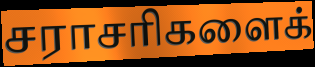
சராசரிகளைக்